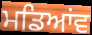
ਮਡਿਆਂਵ